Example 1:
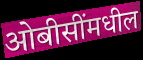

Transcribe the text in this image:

ओबीसींमधील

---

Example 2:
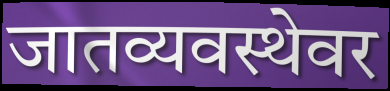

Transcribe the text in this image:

जातव्यवस्थेवर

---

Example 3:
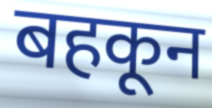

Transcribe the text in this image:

बहकून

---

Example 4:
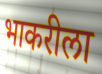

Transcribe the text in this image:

भाकरीला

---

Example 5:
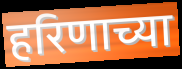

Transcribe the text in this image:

हरिणाच्या